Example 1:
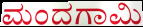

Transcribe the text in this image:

ಮಂದಗಾಮಿ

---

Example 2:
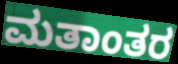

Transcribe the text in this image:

ಮತಾಂತರ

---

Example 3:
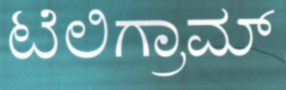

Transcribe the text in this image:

ಟೆಲಿಗ್ರಾಮ್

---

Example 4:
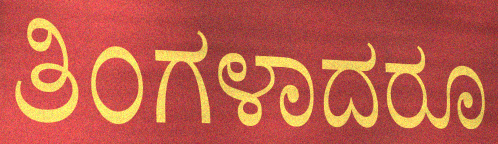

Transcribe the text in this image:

ತಿಂಗಳಾದರೂ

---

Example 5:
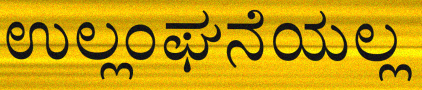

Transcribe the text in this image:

ಉಲ್ಲಂಘನೆಯಲ್ಲ